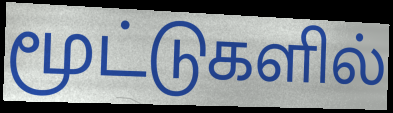
மூட்டுகளில்